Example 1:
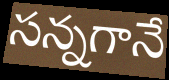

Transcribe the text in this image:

సన్నగానే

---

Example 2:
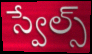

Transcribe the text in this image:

స్వేల్స్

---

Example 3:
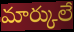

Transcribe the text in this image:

మార్కులే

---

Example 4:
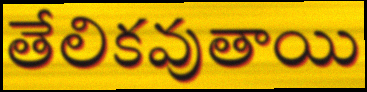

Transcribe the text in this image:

తేలికవుతాయి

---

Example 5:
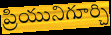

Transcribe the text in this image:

ప్రియునిగూర్చి